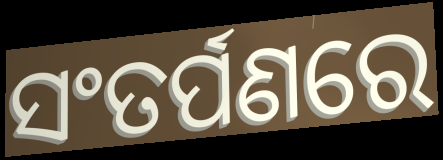
ସଂତର୍ପଣରେ